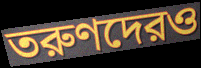
তরুণদেরও